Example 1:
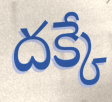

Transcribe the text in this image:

దక్కే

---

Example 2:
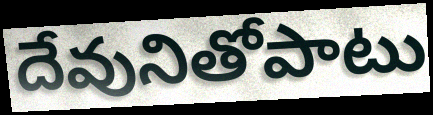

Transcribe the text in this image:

దేవునితోపాటు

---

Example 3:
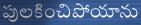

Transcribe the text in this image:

పులకించిపోయాను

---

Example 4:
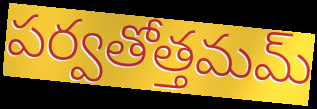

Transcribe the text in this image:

పర్వతోత్తమమ్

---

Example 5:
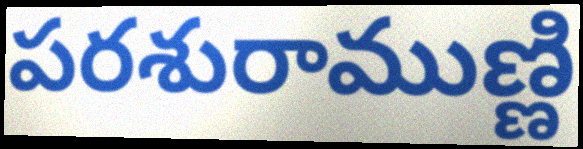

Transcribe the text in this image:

పరశురాముణ్ణి